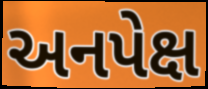
અનપેક્ષ